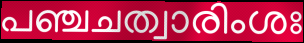
പഞ്ചചത്വാരിംശഃ